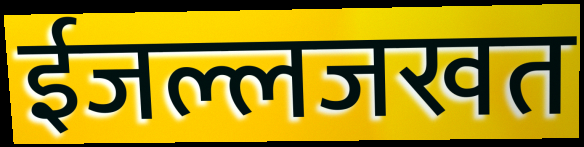
ईजल्लजखत